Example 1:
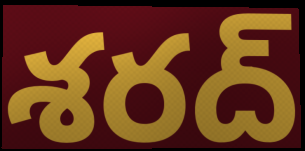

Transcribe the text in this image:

శరద్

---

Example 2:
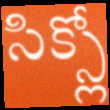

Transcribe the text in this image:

సిక్స్లో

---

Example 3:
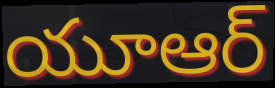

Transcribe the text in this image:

యూఆర్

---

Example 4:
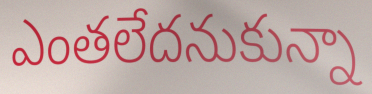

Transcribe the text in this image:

ఎంతలేదనుకున్నా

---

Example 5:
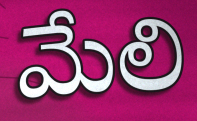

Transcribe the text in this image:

మేలి